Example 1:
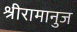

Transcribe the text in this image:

श्रीरामानुज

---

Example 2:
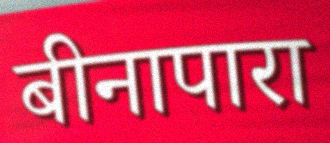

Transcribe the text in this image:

बीनापारा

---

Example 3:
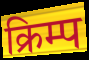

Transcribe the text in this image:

क्रिम्प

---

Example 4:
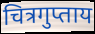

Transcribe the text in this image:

चित्रगुप्ताय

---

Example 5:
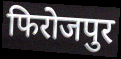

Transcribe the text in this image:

फिरोजपुर